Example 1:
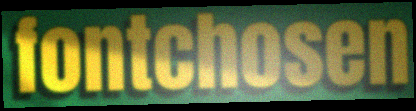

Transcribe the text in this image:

fontchosen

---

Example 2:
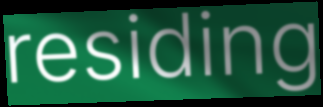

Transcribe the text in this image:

residing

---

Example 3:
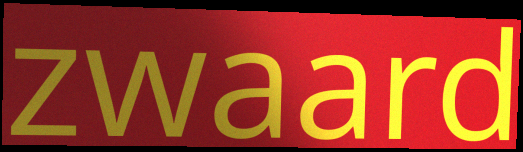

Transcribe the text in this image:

zwaard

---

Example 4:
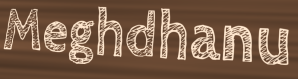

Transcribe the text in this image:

Meghdhanu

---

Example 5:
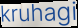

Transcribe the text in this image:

kruhagi